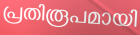
പ്രതിരൂപമായി